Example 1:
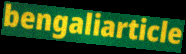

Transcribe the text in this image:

bengaliarticle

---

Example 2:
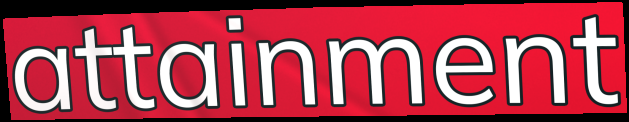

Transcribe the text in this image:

attainment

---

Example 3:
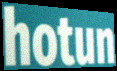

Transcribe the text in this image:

hotun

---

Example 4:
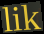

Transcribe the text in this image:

lik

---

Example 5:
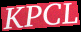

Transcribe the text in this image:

KPCL